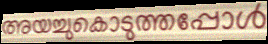
അയച്ചുകൊടുത്തപ്പോൾ